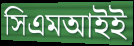
সিএমআইই